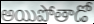
అయిపోతాడో